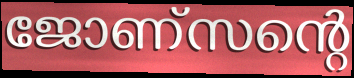
ജോണ്സന്റെ